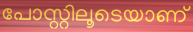
പോസ്റ്റിലൂടെയാണ്